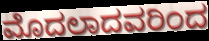
ಮೊದಲಾದವರಿಂದ